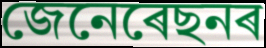
জেনেৰেছনৰ